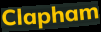
Clapham